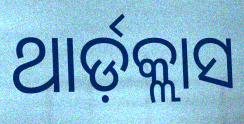
ଥାର୍ଡ଼କ୍ଲାସ